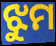
ଝୁମ